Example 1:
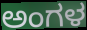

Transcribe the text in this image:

ಅಂಗಳ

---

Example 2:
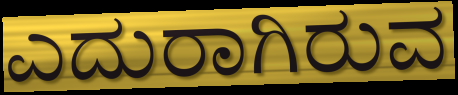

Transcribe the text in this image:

ಎದುರಾಗಿರುವ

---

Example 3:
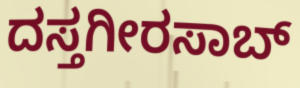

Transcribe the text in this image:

ದಸ್ತಗೀರಸಾಬ್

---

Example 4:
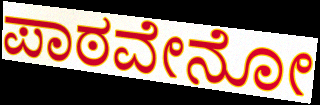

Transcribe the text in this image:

ಪಾಠವೇನೋ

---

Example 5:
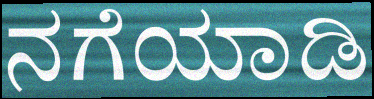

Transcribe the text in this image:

ನಗೆಯಾಡಿ